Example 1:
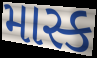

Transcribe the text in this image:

માસ્ક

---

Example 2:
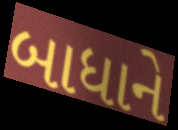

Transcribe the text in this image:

બાધાને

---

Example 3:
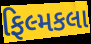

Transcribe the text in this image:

ફિલ્મકલા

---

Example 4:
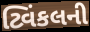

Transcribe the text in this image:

ટ્વિંકલની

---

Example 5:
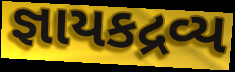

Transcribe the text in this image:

જ્ઞાયકદ્રવ્ય